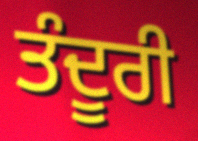
ਤੰਦੂਰੀ